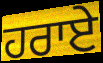
ਹਰਾਏ